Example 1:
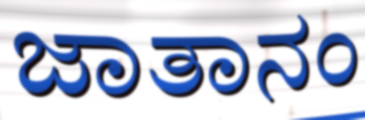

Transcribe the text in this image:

ಜಾತಾನಂ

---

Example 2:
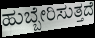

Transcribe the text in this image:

ಹುಬ್ಬೇರಿಸುತ್ತದೆ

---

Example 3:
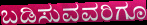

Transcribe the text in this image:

ಬಡಿಸುವವರಿಗೂ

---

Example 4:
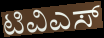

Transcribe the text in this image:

ಟಿವಿಎಸ್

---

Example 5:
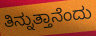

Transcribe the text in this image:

ತಿನ್ನುತ್ತಾನೆಂದು